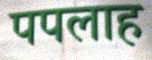
पपलाह